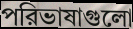
পরিভাষাগুলো